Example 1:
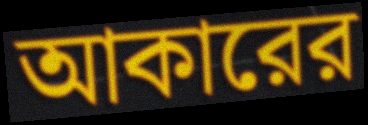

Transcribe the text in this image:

আকারের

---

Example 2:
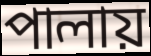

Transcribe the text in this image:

পালায়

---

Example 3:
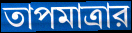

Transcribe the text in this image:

তাপমাত্রার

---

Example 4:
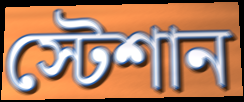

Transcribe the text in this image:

স্টেশান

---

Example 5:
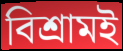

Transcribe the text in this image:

বিশ্রামই